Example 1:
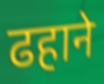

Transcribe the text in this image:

ढहाने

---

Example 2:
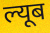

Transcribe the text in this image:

ल्यूब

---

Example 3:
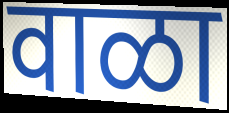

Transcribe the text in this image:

वाळा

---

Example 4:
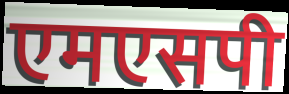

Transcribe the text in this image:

एमएसपी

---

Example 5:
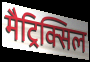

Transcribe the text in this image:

मैट्रिक्सिल